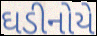
ઘડીનોયે